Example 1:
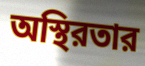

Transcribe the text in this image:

অস্থিরতার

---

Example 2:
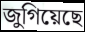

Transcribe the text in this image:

জুগিয়েছে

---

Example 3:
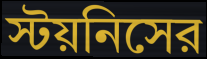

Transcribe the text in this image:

স্টয়নিসের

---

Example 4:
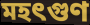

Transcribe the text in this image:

মহৎগুণ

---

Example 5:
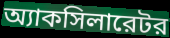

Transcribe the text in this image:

অ্যাকসিলারেটর